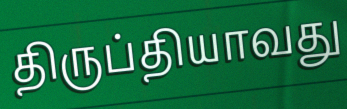
திருப்தியாவது